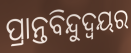
ପ୍ରାନ୍ତବିନ୍ଦୁଦ୍ଵୟର